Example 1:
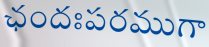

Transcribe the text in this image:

ఛందఃపరముగా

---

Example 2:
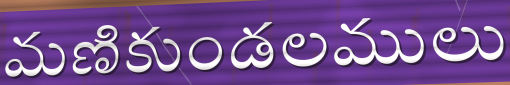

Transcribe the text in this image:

మణికుండలములు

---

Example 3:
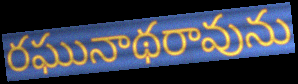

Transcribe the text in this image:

రఘునాథరావును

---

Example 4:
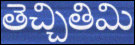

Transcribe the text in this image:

తెచ్చితిమి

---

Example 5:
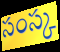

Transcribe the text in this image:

సంస్క